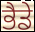
ਭੈਡੇ